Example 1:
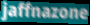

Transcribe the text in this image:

jaffnazone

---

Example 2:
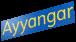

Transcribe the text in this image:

Ayyangar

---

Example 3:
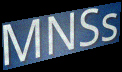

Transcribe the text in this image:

MNSs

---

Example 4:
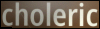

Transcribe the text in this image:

choleric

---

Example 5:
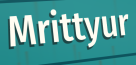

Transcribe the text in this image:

Mrittyur